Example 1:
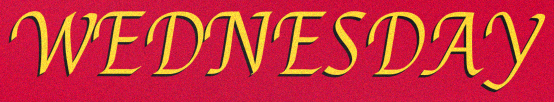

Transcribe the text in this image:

WEDNESDAY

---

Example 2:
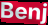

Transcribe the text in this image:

Benj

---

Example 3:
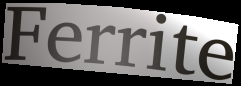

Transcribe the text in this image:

Ferrite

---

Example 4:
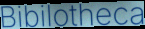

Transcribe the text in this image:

Bibilotheca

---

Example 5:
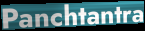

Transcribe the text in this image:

Panchtantra